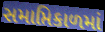
સમાપ્તિકાળમાં